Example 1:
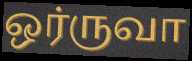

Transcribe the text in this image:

ஒர்ருவா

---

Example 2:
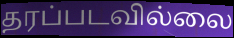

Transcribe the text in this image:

தரப்படவில்லை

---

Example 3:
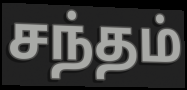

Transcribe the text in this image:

சந்தம்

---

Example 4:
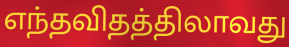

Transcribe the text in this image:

எந்தவிதத்திலாவது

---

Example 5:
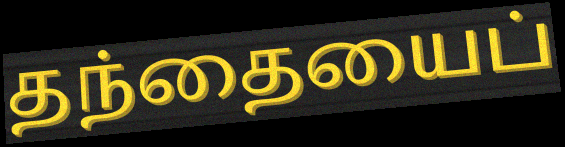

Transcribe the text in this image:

தந்தையைப்